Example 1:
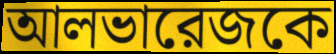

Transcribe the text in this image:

আলভারেজকে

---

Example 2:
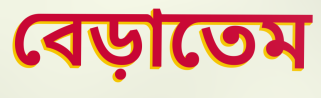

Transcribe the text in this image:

বেড়াতেম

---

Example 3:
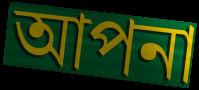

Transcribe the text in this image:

আপনা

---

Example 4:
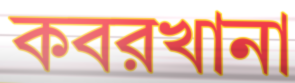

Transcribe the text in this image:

কবরখানা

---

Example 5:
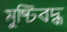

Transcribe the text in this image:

মুষ্টিবদ্ধ